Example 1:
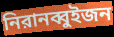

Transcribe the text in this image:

নিরানব্বুইজন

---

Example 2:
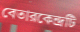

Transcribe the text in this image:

বেতারকেন্দ্রটি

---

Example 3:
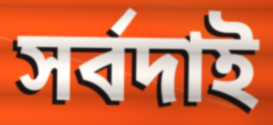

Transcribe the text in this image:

সর্বদাই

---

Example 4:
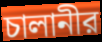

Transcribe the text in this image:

চালানীর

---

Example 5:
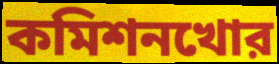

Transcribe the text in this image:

কমিশনখোর